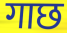
गाछ